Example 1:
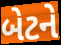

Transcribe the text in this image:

બેટને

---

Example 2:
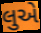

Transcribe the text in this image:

લુએ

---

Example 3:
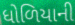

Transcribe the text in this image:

ધોળિયાની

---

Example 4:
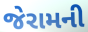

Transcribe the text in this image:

જેરામની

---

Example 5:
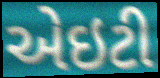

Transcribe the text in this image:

એઇટી